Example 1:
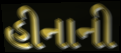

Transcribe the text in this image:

હીનાની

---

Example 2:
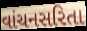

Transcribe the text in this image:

વાંચનસરિતા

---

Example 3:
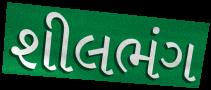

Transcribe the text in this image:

શીલભંગ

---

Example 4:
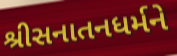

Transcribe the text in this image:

શ્રીસનાતનધર્મને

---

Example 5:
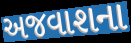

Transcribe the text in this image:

અજવાશના